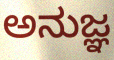
ಅನುಜ್ಞ